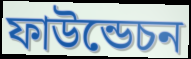
ফাউন্ডেচন